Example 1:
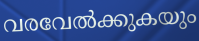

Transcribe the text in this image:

വരവേൽക്കുകയും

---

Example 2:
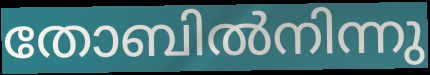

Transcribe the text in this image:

തോബിൽനിന്നു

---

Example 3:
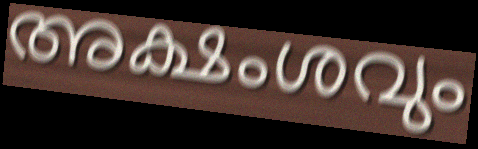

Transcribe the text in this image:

അക്ഷംശവും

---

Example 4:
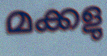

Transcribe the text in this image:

മക്കളു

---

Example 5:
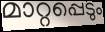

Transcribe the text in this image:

മാറ്റപ്പെടും